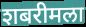
शबरीमला